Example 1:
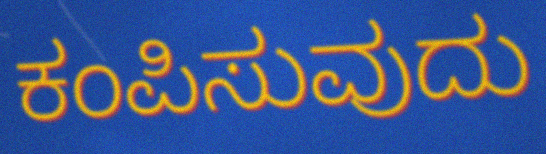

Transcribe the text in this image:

ಕಂಪಿಸುವುದು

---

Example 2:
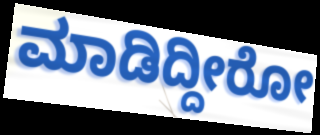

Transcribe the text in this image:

ಮಾಡಿದ್ದೀರೋ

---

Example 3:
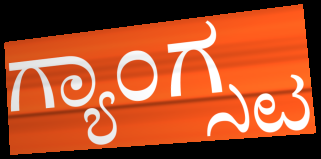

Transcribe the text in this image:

ಗ್ಯಾಂಗ್ಸ್ಟ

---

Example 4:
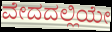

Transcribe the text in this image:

ವೇದದಲ್ಲಿಯೇ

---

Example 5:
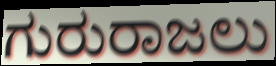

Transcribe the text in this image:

ಗುರುರಾಜಲು